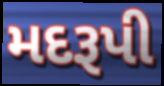
મદરૂપી